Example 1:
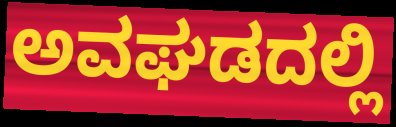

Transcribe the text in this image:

ಅವಘಡದಲ್ಲಿ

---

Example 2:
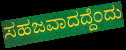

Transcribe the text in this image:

ಸಹಜವಾದದ್ದೆಂದು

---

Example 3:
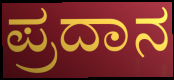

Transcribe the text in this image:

ಪ್ರದಾನ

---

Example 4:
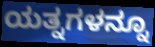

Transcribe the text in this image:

ಯತ್ನಗಳನ್ನೂ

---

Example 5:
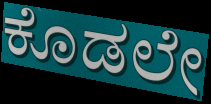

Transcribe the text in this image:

ಕೊಡಲೇ